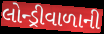
લોન્ડ્રીવાળાની